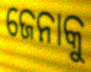
ଜେନାକୁ